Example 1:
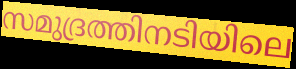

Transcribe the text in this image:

സമുദ്രത്തിനടിയിലെ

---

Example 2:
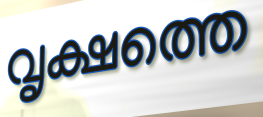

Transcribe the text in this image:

വൃക്ഷത്തെ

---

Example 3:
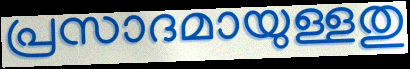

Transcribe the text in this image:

പ്രസാദമായുള്ളതു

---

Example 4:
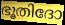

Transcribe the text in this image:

ഭൂതിദോ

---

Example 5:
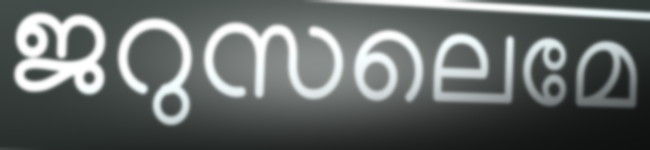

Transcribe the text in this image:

ജറുസലെമേ